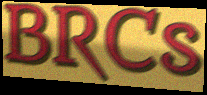
BRCs